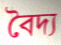
বৈদ্য